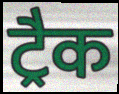
ट्रैक